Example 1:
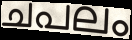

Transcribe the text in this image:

ചപലം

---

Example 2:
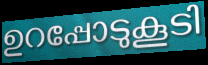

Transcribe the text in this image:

ഉറപ്പോടുകൂടി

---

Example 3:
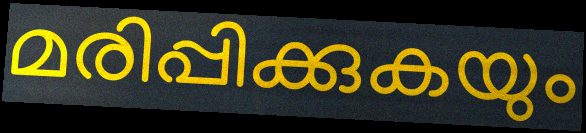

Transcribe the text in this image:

മരിപ്പിക്കുകയും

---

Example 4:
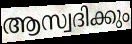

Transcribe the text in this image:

ആസ്വദിക്കും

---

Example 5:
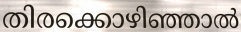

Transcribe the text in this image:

തിരക്കൊഴിഞ്ഞാൽ